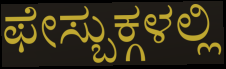
ಫೇಸ್ಬುಕ್ಗಳಲ್ಲಿ